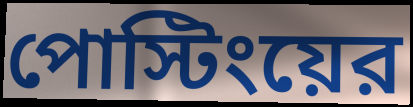
পোস্টিংয়ের